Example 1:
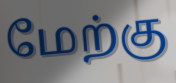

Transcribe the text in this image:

மேற்கு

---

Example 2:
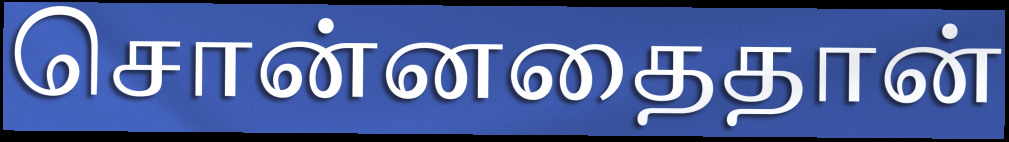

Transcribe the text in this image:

சொன்னதைதான்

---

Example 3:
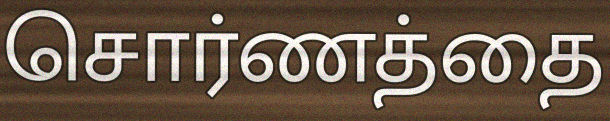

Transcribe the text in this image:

சொர்ணத்தை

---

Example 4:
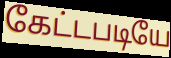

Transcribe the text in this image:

கேட்டபடியே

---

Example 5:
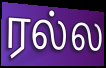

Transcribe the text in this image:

ரல்ல